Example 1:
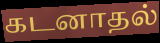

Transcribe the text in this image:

கடனாதல்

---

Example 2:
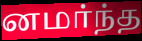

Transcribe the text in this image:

னமர்ந்த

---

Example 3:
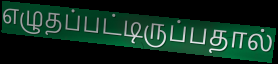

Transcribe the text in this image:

எழுதப்பட்டிருப்பதால்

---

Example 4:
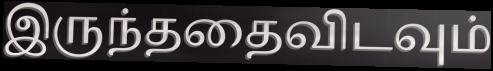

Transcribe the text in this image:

இருந்ததைவிடவும்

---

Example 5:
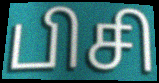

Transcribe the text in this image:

பிசி